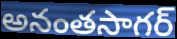
అనంతసాగర్